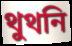
থুথনি